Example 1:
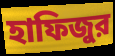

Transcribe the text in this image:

হাফিজুর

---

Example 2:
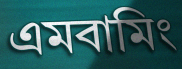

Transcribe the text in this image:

এমবামিং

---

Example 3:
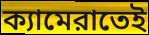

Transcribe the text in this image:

ক্যামেরাতেই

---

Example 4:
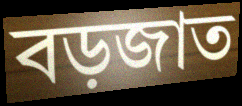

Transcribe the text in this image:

বড়জাত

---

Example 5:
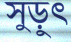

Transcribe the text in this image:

সুড়ুৎ